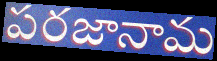
పరజానామ